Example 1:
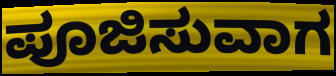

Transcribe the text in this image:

ಪೂಜಿಸುವಾಗ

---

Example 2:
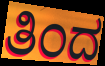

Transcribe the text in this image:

ತಿಂದ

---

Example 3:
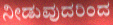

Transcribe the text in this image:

ನೀಡುವುದರಿಂದ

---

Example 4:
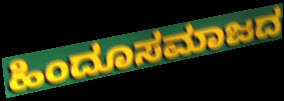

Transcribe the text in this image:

ಹಿಂದೂಸಮಾಜದ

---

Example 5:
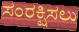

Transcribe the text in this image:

ಸಂರಕ್ಷಿಸಲು